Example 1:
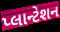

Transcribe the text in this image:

પ્લાન્ટેશન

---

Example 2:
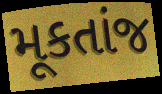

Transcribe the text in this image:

મૂકતાંજ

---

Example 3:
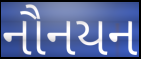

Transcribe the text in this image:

નૌનયન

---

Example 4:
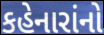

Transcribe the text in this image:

કહેનારાંનો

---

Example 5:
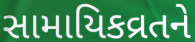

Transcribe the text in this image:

સામાયિકવ્રતને